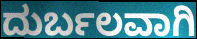
ದುರ್ಬಲವಾಗಿ